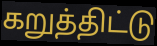
கறுத்திட்டு